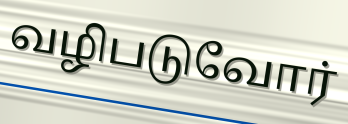
வழிபடுவோர்